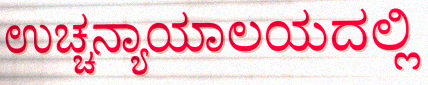
ಉಚ್ಚನ್ಯಾಯಾಲಯದಲ್ಲಿ